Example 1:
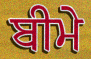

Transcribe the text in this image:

ਬੀਮੇ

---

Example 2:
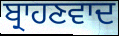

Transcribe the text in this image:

ਬ੍ਰਾਹਣਵਾਦ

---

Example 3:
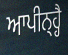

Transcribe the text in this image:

ਆਪੀਨ੍ਹ੍ਹੈ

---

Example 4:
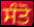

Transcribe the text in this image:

ਸੰਤੋ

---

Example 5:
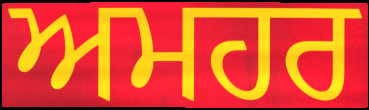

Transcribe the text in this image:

ਅਮਹਰ